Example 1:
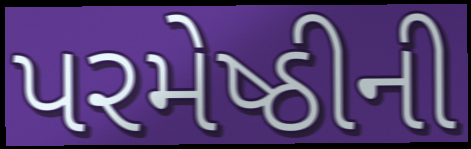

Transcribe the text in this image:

પરમેષ્ઠીની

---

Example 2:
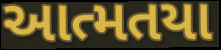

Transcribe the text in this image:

આત્મતયા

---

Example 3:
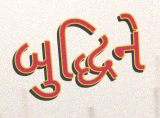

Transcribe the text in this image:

બુદ્ધિને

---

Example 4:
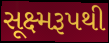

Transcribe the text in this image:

સૂક્ષ્મરૂપથી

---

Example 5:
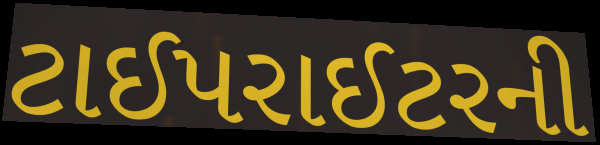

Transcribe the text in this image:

ટાઈપરાઈટરની